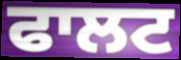
ਫਾਲਟ